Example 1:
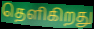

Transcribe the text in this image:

தெளிகிறது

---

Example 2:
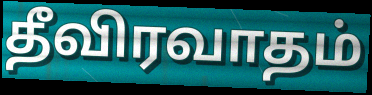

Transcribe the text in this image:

தீவிரவாதம்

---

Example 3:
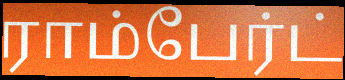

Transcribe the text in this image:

ராம்பேர்ட்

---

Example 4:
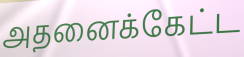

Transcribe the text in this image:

அதனைக்கேட்ட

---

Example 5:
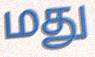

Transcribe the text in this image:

மது